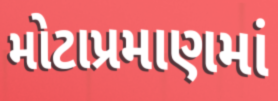
મોટાપ્રમાણમાં